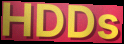
HDDs